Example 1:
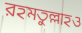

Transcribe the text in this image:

রহমতুল্লাহও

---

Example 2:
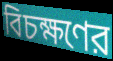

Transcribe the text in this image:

বিচক্ষণের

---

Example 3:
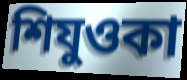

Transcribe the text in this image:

শিযুওকা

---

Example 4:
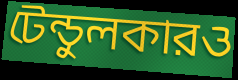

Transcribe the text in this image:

টেন্ডুলকারও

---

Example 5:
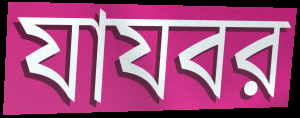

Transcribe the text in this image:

যাযবর